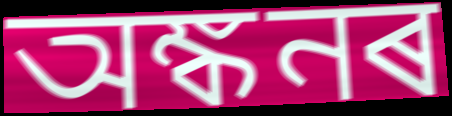
অঙ্কনৰ